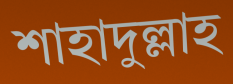
শাহাদুল্লাহ